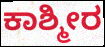
ಕಾಶ್ಮೀರ